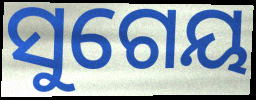
ସୁଗେୟ